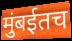
मुंबईतच